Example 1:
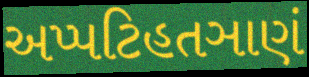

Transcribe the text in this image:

અપ્પટિહતઞાણં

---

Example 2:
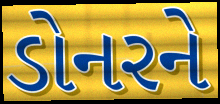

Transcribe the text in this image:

ડોનરને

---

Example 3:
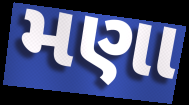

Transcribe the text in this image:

મણા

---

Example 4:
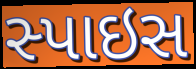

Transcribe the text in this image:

સ્પાઇસ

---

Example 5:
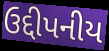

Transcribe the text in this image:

ઉદ્દીપનીય